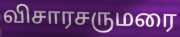
விசாரசருமரை